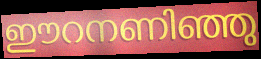
ഈറനണിഞ്ഞു